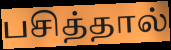
பசித்தால்